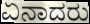
ಏನಾದರು